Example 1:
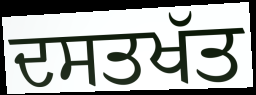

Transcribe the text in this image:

ਦਸਤਖੱਤ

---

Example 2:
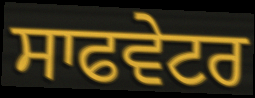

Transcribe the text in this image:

ਸਾਫਵੇਟਰ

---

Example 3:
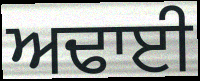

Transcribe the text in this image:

ਅਢਾਈ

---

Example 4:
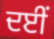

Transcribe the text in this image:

ਦਈਂ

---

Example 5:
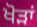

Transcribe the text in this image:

ਖੋੜਾਂ